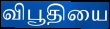
விபூதியை